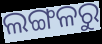
ଲଙ୍ଗଳରୁ